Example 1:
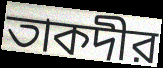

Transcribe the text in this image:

তাকদীর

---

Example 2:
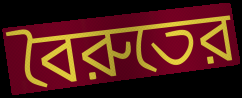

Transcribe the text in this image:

বৈরুতের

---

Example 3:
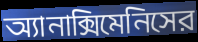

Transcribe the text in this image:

অ্যানাক্সিমেনিসের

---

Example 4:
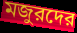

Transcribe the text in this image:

মজুরদের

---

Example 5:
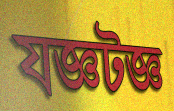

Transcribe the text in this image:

যজ্ঞটজ্ঞ